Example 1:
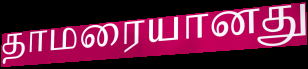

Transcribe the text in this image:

தாமரையானது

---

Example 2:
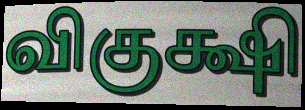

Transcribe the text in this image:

விகுக்ஷி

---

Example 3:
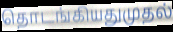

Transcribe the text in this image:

தொடங்கியதுமுதல்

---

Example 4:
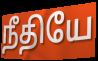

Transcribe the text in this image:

நீதியே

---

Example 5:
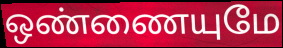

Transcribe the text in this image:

ஒண்ணையுமே